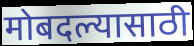
मोबदल्यासाठी